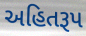
અહિતરૂપ